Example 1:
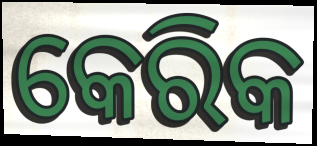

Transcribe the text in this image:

କେରିକ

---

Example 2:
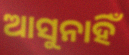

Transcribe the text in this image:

ଆସୁନାହିଁ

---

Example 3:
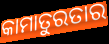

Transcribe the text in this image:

କାମାତୁରତାର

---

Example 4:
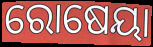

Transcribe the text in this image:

ରୋଷେୟା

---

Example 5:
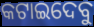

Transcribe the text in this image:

କଟାଇଦେବୁ